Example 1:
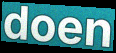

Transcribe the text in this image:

doen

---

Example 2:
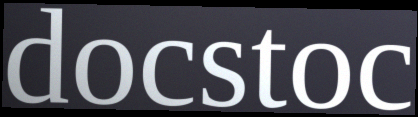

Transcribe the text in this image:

docstoc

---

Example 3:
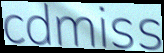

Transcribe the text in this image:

cdmiss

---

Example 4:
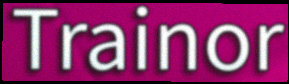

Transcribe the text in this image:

Trainor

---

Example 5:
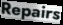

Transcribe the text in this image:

Repairs